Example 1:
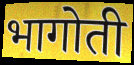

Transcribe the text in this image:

भागोती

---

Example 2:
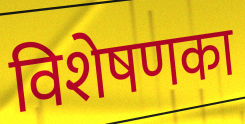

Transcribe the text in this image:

विशेषणका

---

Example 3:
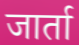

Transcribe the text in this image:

जार्ता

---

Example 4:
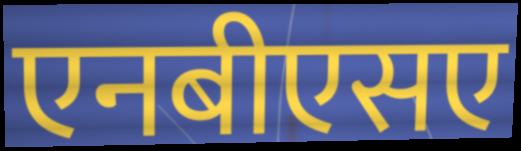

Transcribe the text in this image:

एनबीएसए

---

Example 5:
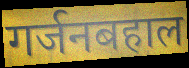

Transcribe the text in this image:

गर्जनबहाल